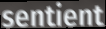
sentient